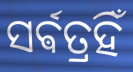
ସର୍ଵତ୍ରହିଁ